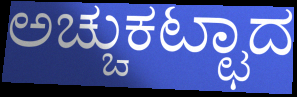
ಅಚ್ಚುಕಟ್ಟಾದ